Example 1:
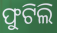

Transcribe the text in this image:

ଫୁଟିଲି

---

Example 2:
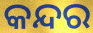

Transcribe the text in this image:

କନ୍ଦର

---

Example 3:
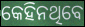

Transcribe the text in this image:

କେହିନଥିବେ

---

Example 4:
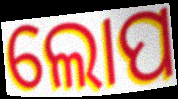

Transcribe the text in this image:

ଲୋପ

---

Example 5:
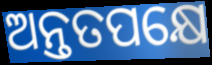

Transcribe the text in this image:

ଅନ୍ତତପକ୍ଷେ